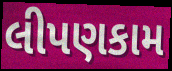
લીપણકામ